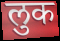
लुक